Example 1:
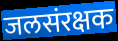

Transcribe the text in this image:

जलसंरक्षक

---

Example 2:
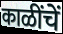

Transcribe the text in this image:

काळींचें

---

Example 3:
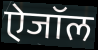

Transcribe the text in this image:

ऐजॉल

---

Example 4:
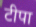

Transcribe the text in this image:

टीपा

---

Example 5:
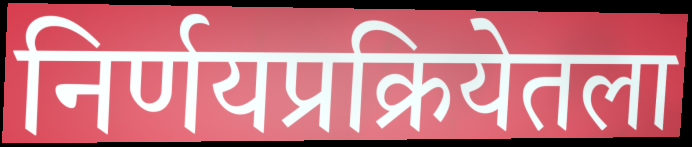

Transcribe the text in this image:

निर्णयप्रक्रियेतला